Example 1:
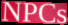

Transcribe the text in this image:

NPCs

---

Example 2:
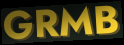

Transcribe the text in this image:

GRMB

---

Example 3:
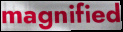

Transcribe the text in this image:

magnified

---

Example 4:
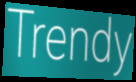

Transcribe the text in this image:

Trendy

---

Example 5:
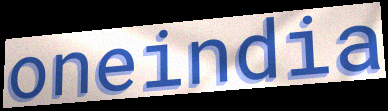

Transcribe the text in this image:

oneindia